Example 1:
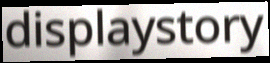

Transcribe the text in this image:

displaystory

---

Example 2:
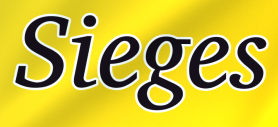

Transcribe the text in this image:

Sieges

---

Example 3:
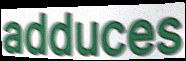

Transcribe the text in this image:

adduces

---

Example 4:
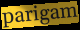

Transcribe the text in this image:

parigam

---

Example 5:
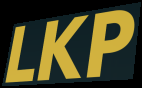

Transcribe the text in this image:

LKP